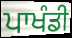
ਪਾਖੰਡੀ